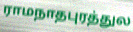
ராமநாதபுரத்துல